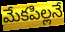
మేకపిల్లనే